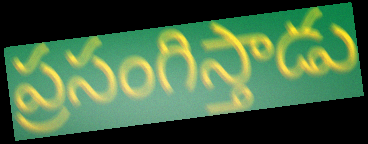
ప్రసంగిస్తాడు